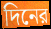
দিনের